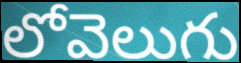
లోవెలుగు